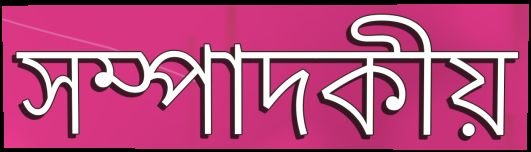
সম্পাদকীয়